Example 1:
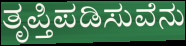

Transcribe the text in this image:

ತೃಪ್ತಿಪಡಿಸುವೆನು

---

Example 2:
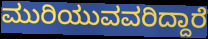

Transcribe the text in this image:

ಮುರಿಯುವವರಿದ್ದಾರೆ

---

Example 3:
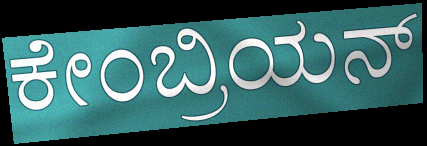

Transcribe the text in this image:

ಕೇಂಬ್ರಿಯನ್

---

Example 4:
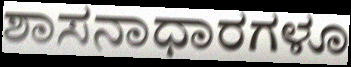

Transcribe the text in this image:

ಶಾಸನಾಧಾರಗಳೂ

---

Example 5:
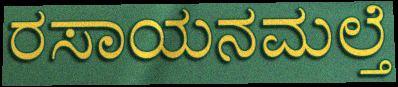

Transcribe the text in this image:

ರಸಾಯನಮಲ್ತೆ